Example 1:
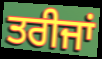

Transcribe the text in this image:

ਤਰੀਜਾਂ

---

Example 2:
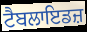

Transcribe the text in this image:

ਟੈਬਲਾਇਡਜ਼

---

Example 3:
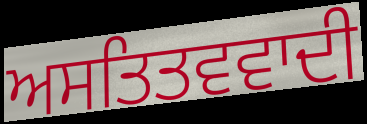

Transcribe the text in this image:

ਅਸਤਿਤਵਵਾਦੀ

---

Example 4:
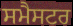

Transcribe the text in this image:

ਸਮੈਸਟਰ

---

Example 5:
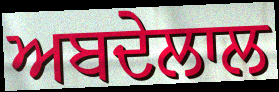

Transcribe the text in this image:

ਅਬਦੇਲਾਲ